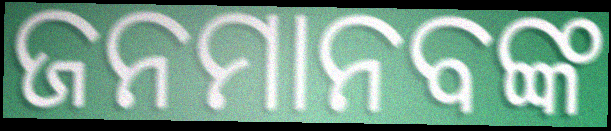
ଜନମାନବଙ୍କ